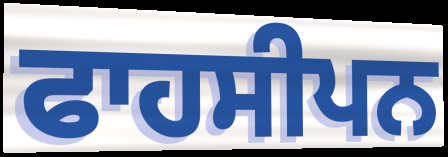
ਫਾਹਸੀਪਨ